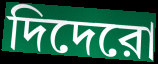
দিদেরো